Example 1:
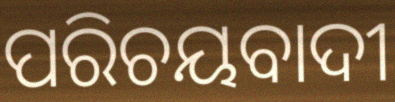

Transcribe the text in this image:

ପରିଚୟବାଦୀ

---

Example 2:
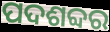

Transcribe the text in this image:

ପଦଶବ୍ଦର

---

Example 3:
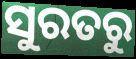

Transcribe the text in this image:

ସୁରତରୁ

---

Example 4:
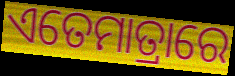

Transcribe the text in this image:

ଏତେମାତ୍ରାରେ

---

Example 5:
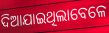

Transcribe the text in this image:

ଦିଆଯାଇଥିଲାବେଳେ